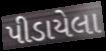
પીડાયેલા